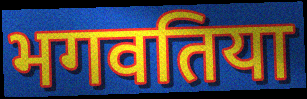
भगवतिया